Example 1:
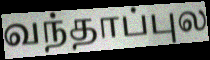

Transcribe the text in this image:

வந்தாப்புல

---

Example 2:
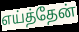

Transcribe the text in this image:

எய்த்தேன்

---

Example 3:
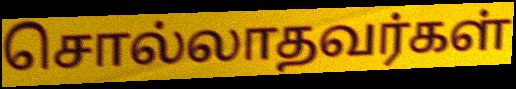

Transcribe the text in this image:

சொல்லாதவர்கள்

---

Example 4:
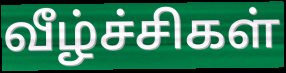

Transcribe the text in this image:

வீழ்ச்சிகள்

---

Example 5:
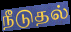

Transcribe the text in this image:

நீடுதல்